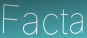
Facta